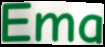
Ema